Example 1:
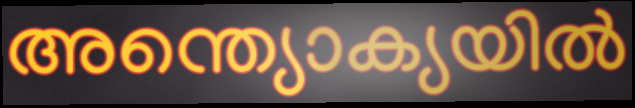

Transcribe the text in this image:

അന്ത്യൊക്യയിൽ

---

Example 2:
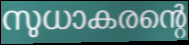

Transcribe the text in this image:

സുധാകരന്റെ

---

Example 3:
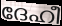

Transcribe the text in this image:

ദേഹീ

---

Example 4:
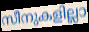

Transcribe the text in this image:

സീനുകളില്ലാ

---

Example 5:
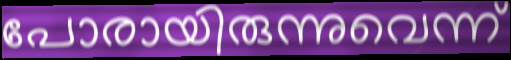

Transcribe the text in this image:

പോരായിരുന്നുവെന്ന്